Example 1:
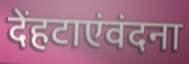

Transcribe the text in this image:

देंहटाएंवंदना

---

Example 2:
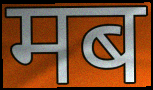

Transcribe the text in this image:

मब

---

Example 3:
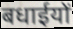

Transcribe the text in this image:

बधाईयों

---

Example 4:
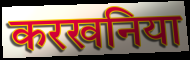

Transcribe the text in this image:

करखनिया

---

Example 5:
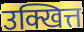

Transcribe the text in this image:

उक्खित्त